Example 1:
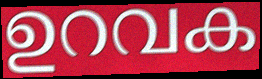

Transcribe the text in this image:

ഉറവക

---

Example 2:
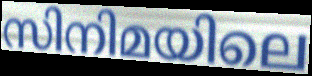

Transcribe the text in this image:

സിനിമയിലെ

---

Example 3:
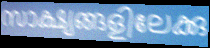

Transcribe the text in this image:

സാക്ഷ്യങ്ങളിലേക്കു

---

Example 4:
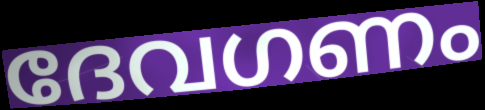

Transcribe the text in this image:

ദേവഗണം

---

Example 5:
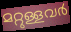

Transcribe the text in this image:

മറ്റുള്ളവർ